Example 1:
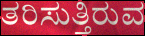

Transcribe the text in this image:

ತರಿಸುತ್ತಿರುವ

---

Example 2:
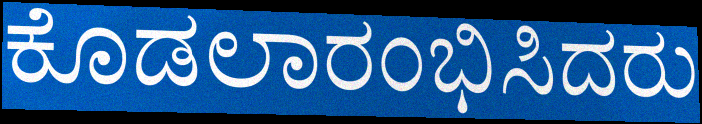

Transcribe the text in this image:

ಕೊಡಲಾರಂಭಿಸಿದರು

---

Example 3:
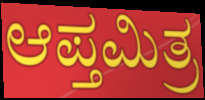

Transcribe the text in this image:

ಆಪ್ತಮಿತ್ರ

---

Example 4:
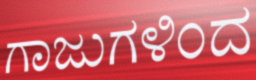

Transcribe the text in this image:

ಗಾಜುಗಳಿಂದ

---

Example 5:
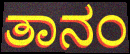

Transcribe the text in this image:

ತಾನಂ